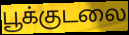
பூக்குடலை